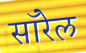
सॉरेल